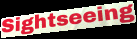
Sightseeing